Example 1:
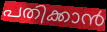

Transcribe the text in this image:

പതിക്കാൻ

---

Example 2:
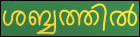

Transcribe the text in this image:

ശബ്ബത്തിൽ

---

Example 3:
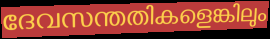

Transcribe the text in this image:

ദേവസന്തതികളെങ്കിലും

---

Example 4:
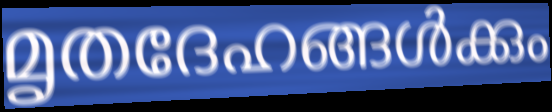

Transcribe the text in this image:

മൃതദേഹങ്ങൾക്കും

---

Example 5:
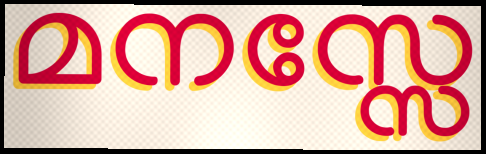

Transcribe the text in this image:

മനസ്സേ